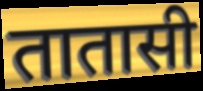
तातासी